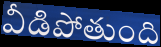
వీడిపోతుంది